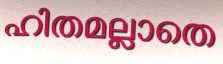
ഹിതമല്ലാതെ